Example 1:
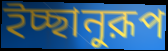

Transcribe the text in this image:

ইচ্ছানুরূপ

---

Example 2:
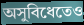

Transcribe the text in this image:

অসুবিধেতেও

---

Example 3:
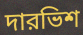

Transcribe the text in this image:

দারভিশ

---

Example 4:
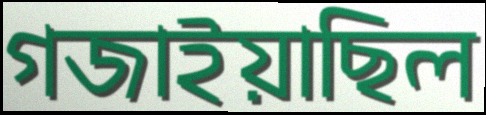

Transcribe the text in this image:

গজাইয়াছিল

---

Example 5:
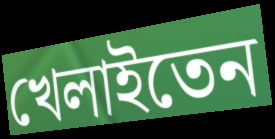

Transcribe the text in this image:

খেলাইতেন